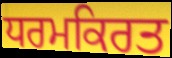
ਧਰਮਕਿਰਤ